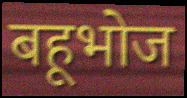
बहूभोज